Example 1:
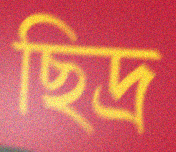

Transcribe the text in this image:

ছিদ্ৰ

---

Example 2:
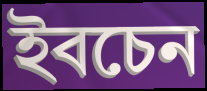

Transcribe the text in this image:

ইবচেন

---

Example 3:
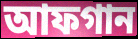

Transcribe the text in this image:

আফগান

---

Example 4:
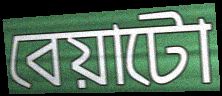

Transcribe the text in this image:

বেয়াটো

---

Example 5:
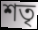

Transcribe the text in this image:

শতৃ